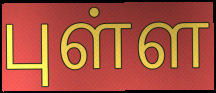
புள்ள